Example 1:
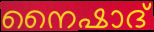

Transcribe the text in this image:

നൈഷാദ്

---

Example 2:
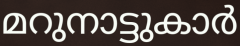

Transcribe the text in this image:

മറുനാട്ടുകാർ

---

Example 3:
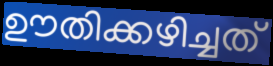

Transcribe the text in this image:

ഊതിക്കഴിച്ചത്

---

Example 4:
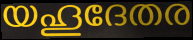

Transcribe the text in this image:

യഹൂദേതര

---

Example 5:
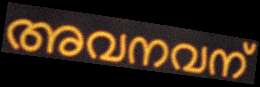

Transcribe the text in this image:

അവനവന്